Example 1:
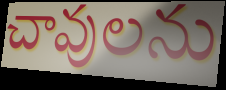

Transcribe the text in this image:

చావులను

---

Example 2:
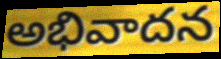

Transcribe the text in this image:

అభివాదన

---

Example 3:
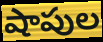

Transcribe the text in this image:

షాపుల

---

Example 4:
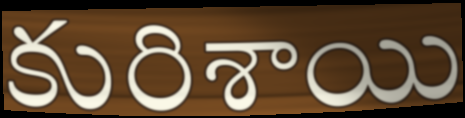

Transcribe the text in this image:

కురిశాయి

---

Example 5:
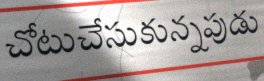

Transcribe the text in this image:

చోటుచేసుకున్నపుడు